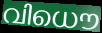
വിധൌ